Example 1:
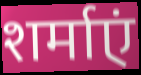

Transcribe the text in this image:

शर्माएं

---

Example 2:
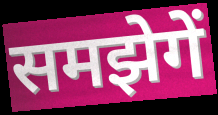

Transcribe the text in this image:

समझेगें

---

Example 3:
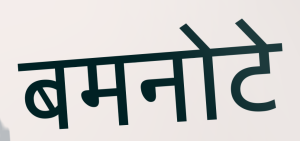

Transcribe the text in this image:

बमनोटे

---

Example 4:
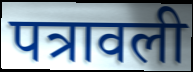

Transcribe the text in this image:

पत्रावली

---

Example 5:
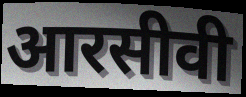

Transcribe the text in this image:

आरसीवी